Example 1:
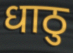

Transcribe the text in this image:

धाठु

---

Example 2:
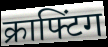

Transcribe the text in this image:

क्राफ्टिंग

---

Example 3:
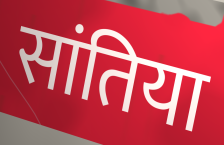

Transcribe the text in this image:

सांतिया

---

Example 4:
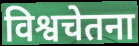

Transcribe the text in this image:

विश्वचेतना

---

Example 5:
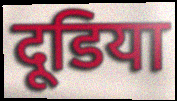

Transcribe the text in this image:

दूडिया